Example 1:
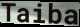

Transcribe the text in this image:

Taiba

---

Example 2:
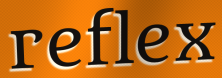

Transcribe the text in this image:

reflex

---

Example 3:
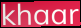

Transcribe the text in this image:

khaar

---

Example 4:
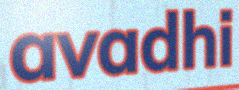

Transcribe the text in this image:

avadhi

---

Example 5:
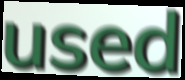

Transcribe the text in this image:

used